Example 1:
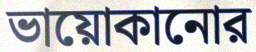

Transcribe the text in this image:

ভায়োকানোর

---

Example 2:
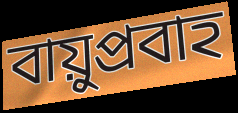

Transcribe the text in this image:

বায়ুপ্রবাহ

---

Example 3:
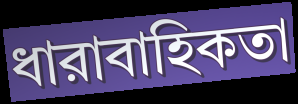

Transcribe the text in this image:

ধারাবাহিকতা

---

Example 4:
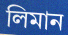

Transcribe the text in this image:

লিমান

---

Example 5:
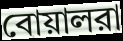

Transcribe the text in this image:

বোয়ালরা